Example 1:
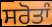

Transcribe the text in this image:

ਸਰੋਤਾੰ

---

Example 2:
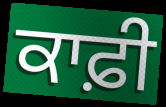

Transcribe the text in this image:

ਕਾਫ਼ੀ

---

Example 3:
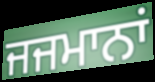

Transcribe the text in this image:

ਜਜਮਾਨਾਂ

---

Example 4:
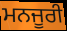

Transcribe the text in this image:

ਮਨਜੂਰੀ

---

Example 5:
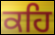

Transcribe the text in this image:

ਕਹਿ